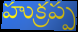
హుక్రప్ప